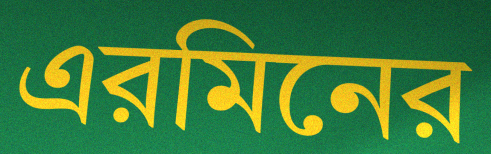
এরমিনের